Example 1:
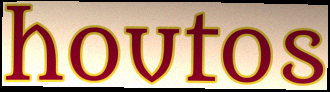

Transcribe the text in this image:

houtos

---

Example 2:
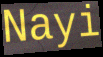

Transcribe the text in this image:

Nayi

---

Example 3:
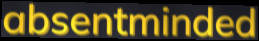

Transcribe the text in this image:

absentminded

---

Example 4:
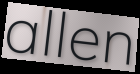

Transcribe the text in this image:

allen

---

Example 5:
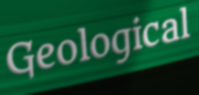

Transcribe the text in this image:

Geological